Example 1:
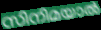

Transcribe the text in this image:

സിനിമയാൽ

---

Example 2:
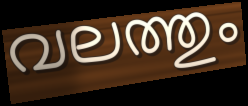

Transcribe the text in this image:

വലത്തും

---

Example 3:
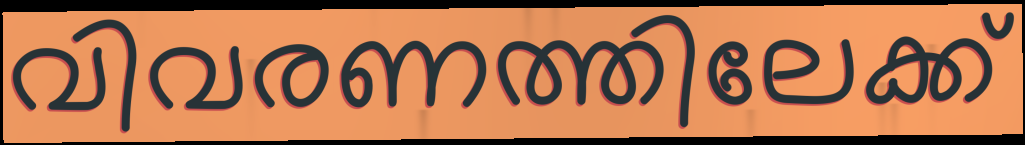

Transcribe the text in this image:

വിവരണത്തിലേക്ക്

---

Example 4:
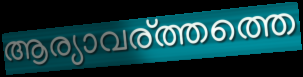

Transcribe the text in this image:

ആര്യാവര്ത്തത്തെ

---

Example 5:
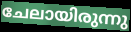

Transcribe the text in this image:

ചേലായിരുന്നു